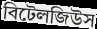
বিটেলজিউস